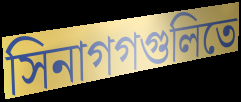
সিনাগগগুলিতে